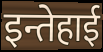
इन्तेहाई